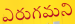
ఎరుగమని